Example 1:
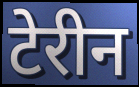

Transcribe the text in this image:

टेरीन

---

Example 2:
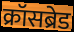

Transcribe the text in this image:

क्रॉसब्रेड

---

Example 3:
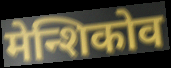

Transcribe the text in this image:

मेन्शिकोव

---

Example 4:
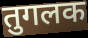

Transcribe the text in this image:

तुगलक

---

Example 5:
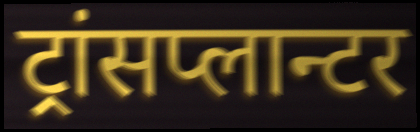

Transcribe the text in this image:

ट्रांसप्लान्टर